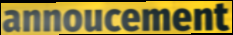
annoucement